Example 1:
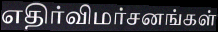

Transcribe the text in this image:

எதிர்விமர்சனங்கள்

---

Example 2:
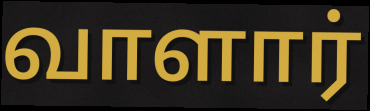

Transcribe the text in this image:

வாளார்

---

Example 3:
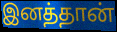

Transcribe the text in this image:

இனத்தான்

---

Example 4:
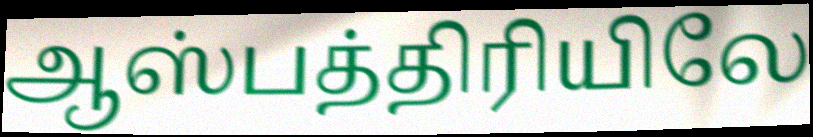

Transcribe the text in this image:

ஆஸ்பத்திரியிலே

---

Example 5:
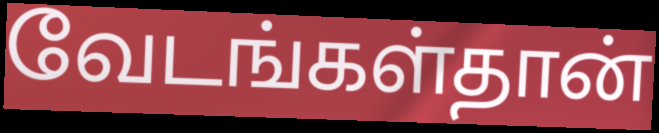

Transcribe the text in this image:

வேடங்கள்தான்